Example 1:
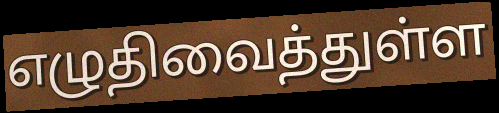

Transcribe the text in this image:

எழுதிவைத்துள்ள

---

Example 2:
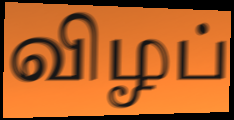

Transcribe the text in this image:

விழப்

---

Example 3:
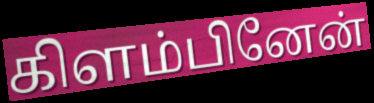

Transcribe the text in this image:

கிளம்பினேன்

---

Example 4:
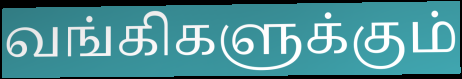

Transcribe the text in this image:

வங்கிகளுக்கும்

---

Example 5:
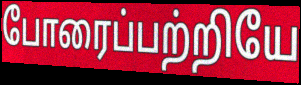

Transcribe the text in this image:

போரைப்பற்றியே